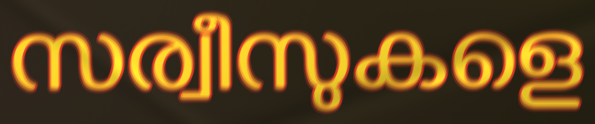
സര്വീസുകളെ